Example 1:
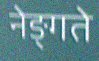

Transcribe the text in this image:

नेङ्गते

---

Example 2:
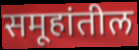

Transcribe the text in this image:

समूहांतील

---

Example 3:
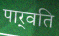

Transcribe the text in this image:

पार्वति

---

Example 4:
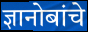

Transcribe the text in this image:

ज्ञानोबांचे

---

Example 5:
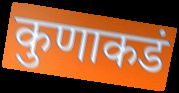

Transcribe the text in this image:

कुणाकडं